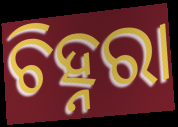
ଚିହ୍ନରା